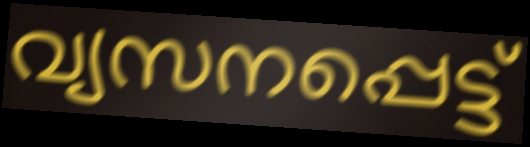
വ്യസനപ്പെട്ട്